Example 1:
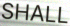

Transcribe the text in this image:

SHALL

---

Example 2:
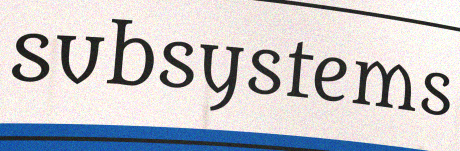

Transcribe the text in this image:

subsystems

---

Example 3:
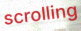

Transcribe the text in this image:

scrolling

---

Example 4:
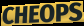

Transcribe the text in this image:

CHEOPS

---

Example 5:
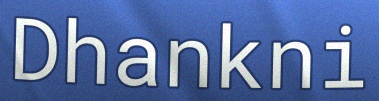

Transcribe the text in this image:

Dhankni